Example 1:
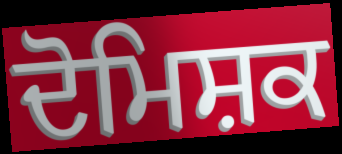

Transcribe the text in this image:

ਦੋਮਿਸ਼ਕ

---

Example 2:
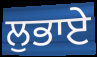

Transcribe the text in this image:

ਲੁਭਾਏ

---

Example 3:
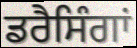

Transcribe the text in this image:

ਡਰੈਸਿੰਗਾਂ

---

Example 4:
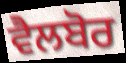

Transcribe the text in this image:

ਵੈਲਬੋਰ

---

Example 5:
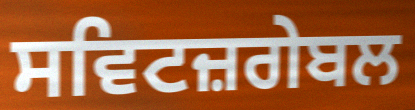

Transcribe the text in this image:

ਸਵਿਟਜ਼ਗੇਬਲ